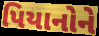
પિયાનોને